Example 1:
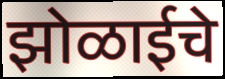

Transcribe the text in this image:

झोळाईचे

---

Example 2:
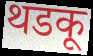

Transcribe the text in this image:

थडकू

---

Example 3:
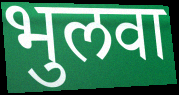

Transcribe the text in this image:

भुलवा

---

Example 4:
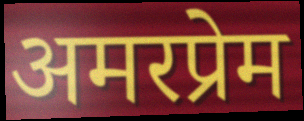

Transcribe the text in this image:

अमरप्रेम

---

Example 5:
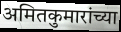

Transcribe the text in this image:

अमितकुमारांच्या